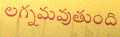
లగ్నమవుతుంది